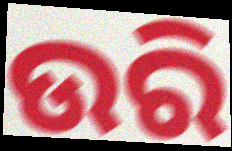
ଉରି